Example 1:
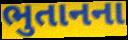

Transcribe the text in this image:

ભુતાનના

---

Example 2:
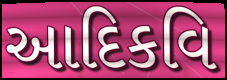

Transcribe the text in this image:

આદિકવિ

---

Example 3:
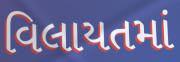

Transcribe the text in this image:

વિલાયતમાં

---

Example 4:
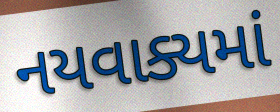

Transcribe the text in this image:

નયવાક્યમાં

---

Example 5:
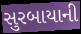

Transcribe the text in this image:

સુરબાયાની